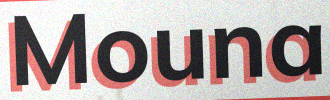
Mouna